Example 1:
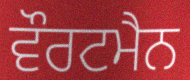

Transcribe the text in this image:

ਵੌਰਟਮੈਨ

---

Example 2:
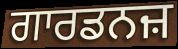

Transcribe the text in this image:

ਗਾਰਡਨਜ਼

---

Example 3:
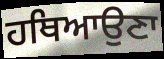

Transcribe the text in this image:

ਹਥਿਆਉਣਾ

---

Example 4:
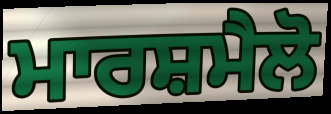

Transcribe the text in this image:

ਮਾਰਸ਼ਮੈਲੋ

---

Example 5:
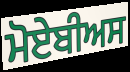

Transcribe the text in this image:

ਮੋਏਬੀਅਸ